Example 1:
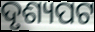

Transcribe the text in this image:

ଦୃଶ୍ୟପଟ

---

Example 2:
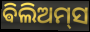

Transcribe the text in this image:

ଵିଲିଅମ୍‌ସ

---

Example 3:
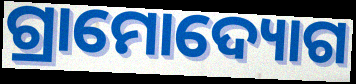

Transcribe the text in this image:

ଗ୍ରାମୋଦ୍ୟୋଗ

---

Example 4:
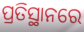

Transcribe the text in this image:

ପ୍ରତିସ୍ଥାନରେ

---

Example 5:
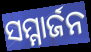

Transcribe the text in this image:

ସମ୍ମାର୍ଜନ